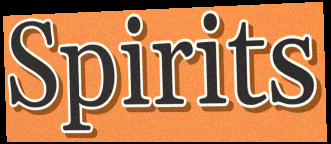
Spirits